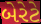
બેરેટે